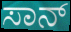
ಸಾನ್